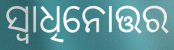
ସ୍ୱାଧିନୋତ୍ତର